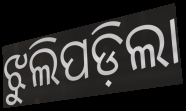
ଝୁଲିପଡ଼ିଲା